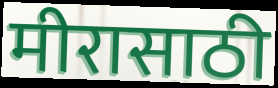
मीरासाठी